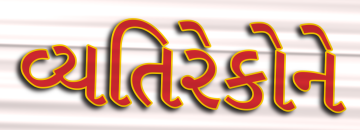
વ્યતિરેકોને